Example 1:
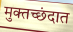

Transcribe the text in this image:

मुक्तच्छंदात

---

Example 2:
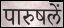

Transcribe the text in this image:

पारुषलें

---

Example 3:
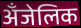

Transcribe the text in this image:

अँजेलिक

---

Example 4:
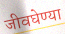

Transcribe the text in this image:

जीवघेण्या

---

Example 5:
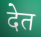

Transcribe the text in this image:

देत